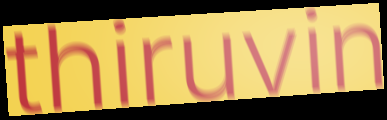
thiruvin